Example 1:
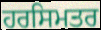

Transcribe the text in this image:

ਹਰਸਿਮਤਰ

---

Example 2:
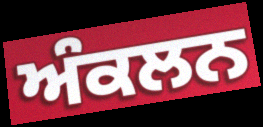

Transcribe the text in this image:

ਅੰਕਲਨ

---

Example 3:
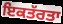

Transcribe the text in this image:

ਇਕਤੱਰਤਾ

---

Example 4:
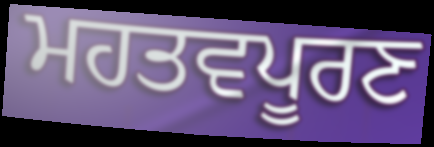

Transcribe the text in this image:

ਮਹਤਵਪੂਰਣ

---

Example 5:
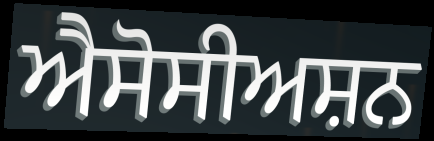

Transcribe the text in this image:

ਐਸੋਸੀਅਸ਼ਨ